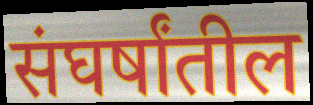
संघर्षांतील